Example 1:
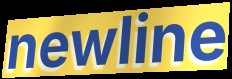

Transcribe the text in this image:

newline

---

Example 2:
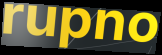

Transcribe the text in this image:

rupno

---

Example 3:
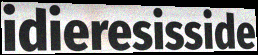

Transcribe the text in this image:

idieresisside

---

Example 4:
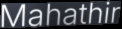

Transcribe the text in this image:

Mahathir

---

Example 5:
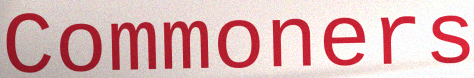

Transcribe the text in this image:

Commoners